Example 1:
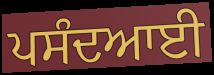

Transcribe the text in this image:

ਪਸੰਦਆਈ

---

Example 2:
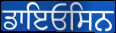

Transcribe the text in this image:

ਡਾਇਓਸਿਨ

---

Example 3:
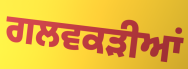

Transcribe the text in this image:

ਗਲਵਕੜੀਆਂ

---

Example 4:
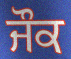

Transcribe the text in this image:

ਜੌਕ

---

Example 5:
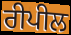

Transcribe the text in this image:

ਰੀਪੀਲ